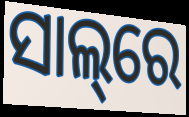
ସାଲ୍‌ରେ